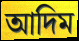
আদিম